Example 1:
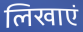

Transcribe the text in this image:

लिखाएं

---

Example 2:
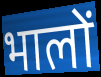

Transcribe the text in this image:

भालों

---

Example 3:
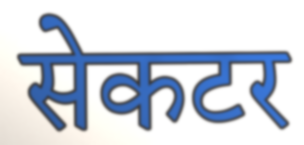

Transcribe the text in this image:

सेकटर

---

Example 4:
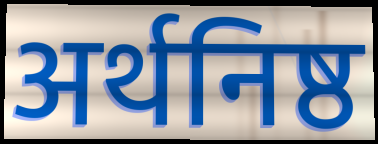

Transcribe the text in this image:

अर्थनिष्ठ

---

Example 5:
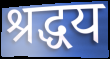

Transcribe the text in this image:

श्रद्धय